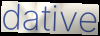
dative